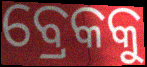
ବ୍ରେକକୁ